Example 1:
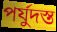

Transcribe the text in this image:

পর্যুদস্ত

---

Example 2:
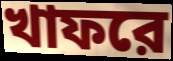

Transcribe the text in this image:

খাফরে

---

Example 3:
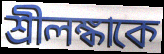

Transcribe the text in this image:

শ্রীলঙ্কাকে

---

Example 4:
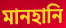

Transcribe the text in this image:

মানহানি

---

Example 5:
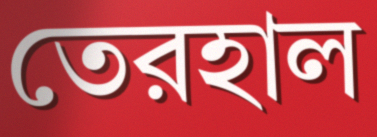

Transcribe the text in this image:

তেরহাল